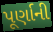
પૂર્ણાની